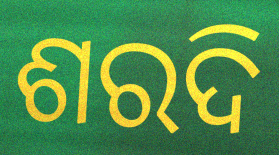
ଶରଦି